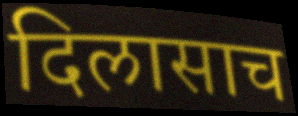
दिलासाच